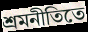
শ্রমনীতিতে